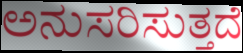
ಅನುಸರಿಸುತ್ತದೆ